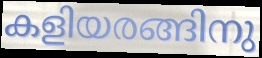
കളിയരങ്ങിനു